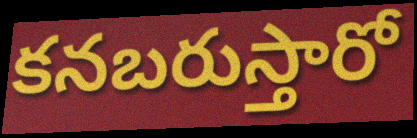
కనబరుస్తారో